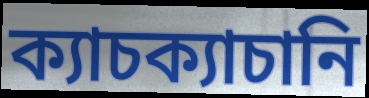
ক্যাচক্যাচানি